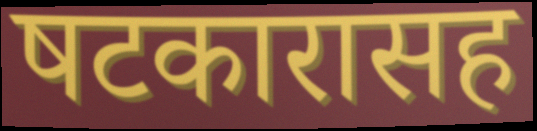
षटकारासह